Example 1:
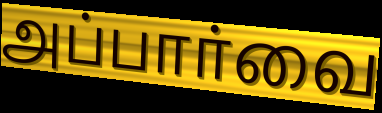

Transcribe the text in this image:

அப்பார்வை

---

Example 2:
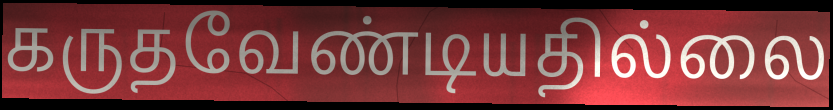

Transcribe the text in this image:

கருதவேண்டியதில்லை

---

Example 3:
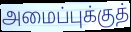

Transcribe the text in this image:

அமைப்புக்குத்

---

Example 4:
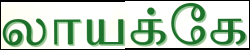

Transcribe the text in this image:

லாயக்கே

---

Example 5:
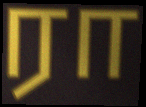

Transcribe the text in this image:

ரா